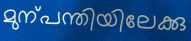
മുന്പന്തിയിലേക്കു